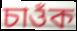
চাওঁক